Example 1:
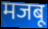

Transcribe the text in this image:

मजबू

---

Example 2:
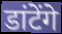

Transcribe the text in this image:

डांटेंगे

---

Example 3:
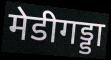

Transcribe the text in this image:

मेडीगड्डा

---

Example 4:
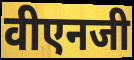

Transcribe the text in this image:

वीएनजी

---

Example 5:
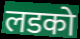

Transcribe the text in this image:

लडको